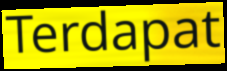
Terdapat